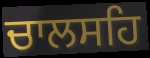
ਚਾਲਸਹਿ